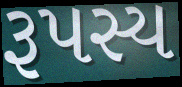
રૂપસ્ય